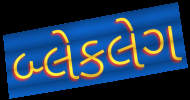
બ્લેકલેગ